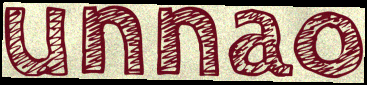
unnao